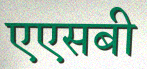
एएसबी